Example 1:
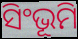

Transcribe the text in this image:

ସିଂଭୂମି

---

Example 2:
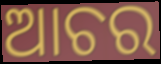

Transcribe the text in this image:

ଆଚର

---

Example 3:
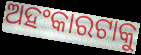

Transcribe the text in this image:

ଅହଂକାରଟାକୁ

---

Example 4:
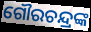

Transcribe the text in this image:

ଗୌରଚନ୍ଦ୍ରଙ୍କ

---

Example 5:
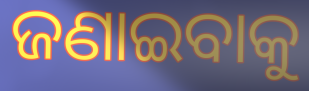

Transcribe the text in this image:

ଜଣାଇବାକୁ